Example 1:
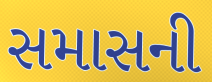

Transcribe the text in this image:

સમાસની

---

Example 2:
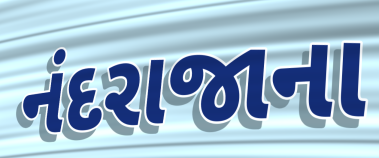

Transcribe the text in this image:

નંદરાજાના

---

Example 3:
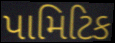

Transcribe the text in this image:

પામિટિક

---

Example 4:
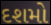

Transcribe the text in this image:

દશમો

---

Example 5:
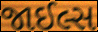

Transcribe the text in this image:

જાઈલ્સ